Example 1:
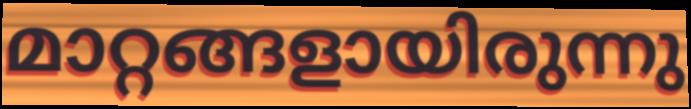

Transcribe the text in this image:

മാറ്റങ്ങളായിരുന്നു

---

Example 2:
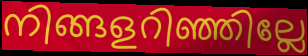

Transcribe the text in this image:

നിങ്ങളറിഞ്ഞില്ലേ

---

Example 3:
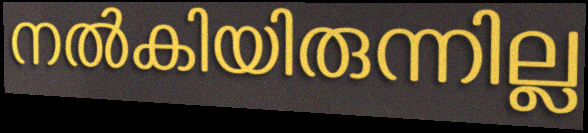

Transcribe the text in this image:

നൽകിയിരുന്നില്ല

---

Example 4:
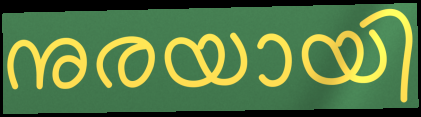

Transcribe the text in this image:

നുരയായി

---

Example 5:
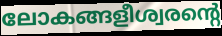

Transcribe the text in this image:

ലോകങ്ങളീശ്വരന്റെ